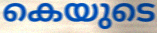
കെയുടെ